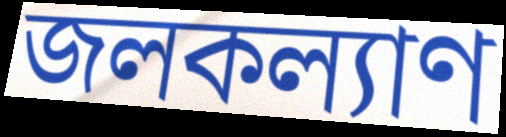
জলকল্যাণ